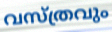
വസ്ത്രവും